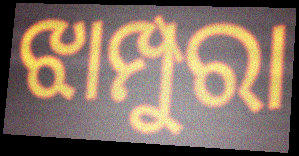
ଝାମ୍ପୁରା